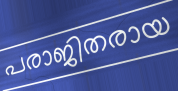
പരാജിതരായ